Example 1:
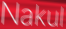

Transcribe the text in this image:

Nakul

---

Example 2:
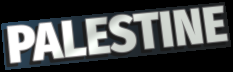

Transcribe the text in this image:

PALESTINE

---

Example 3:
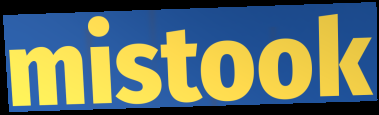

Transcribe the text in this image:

mistook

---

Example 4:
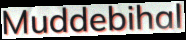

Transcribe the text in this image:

Muddebihal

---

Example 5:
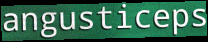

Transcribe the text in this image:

angusticeps